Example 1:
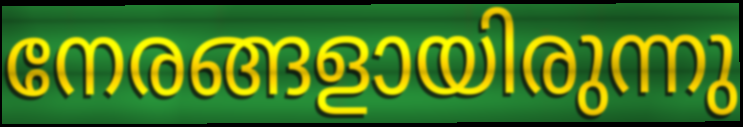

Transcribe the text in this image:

നേരങ്ങളായിരുന്നു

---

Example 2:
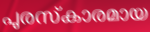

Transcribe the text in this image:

പുരസ്‌കാരമായ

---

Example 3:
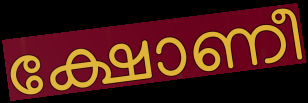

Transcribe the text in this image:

ക്ഷോണീ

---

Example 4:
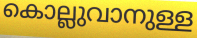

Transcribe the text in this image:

കൊല്ലുവാനുള്ള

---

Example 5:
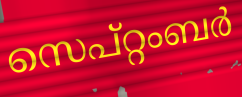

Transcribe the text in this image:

സെപ്റ്റംബർ